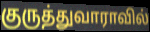
குருத்துவாராவில்